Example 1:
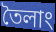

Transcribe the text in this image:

তৈলাং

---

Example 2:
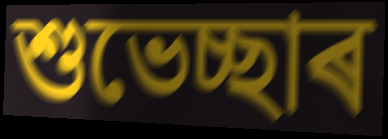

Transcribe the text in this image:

শুভেচ্ছাৰ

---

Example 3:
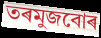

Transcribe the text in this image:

তৰমুজবোৰ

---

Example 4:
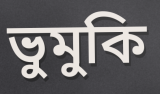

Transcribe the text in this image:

ভুমুকি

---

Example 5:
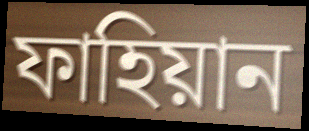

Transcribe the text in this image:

ফাহিয়ান